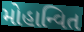
મોહાન્વિત